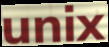
unix